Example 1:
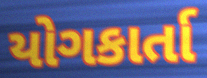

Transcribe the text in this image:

યોગકાર્તા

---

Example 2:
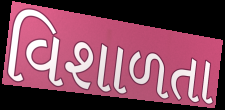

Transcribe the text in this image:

વિશાળતા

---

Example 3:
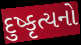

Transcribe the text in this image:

દુષ્કૃત્યનો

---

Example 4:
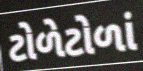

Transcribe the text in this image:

ટોળેટોળાં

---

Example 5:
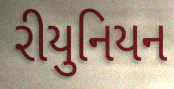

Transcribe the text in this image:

રીયુનિયન